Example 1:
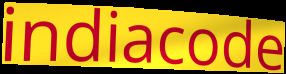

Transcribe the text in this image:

indiacode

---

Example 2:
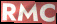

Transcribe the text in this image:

RMC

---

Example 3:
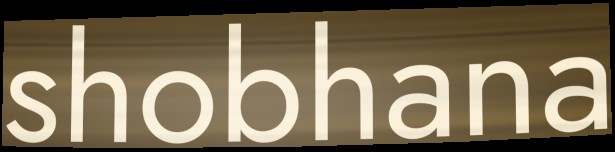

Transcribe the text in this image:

shobhana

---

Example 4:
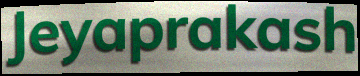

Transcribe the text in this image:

Jeyaprakash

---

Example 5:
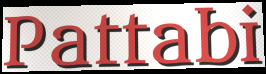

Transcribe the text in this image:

Pattabi